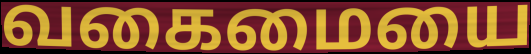
வகைமையை